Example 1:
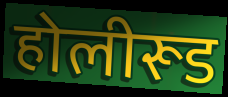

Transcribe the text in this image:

होलीरूड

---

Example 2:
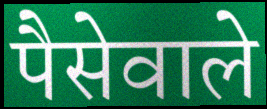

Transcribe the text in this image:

पैसेवाले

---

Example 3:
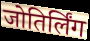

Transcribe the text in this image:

जोतिर्लिंग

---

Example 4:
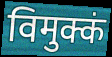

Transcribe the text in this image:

विमुक्कं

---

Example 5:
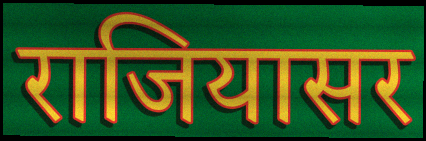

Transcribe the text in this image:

राजियासर